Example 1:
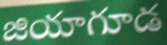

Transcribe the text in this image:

జియాగూడ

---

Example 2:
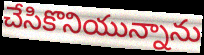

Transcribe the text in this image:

చేసికొనియున్నాను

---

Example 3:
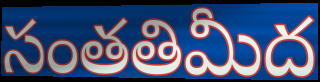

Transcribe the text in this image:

సంతతిమీద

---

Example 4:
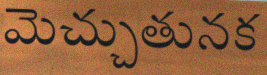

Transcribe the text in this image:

మెచ్చుతునక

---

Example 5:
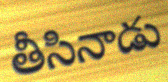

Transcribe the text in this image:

తీసినాడు